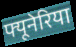
फ्यूनेरिया